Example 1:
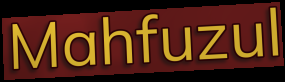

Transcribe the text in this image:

Mahfuzul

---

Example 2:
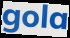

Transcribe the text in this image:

gola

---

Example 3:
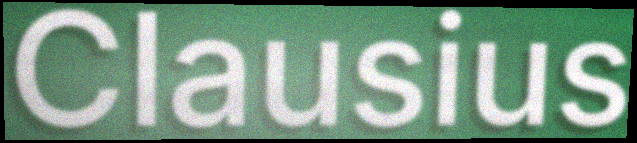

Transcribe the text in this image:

Clausius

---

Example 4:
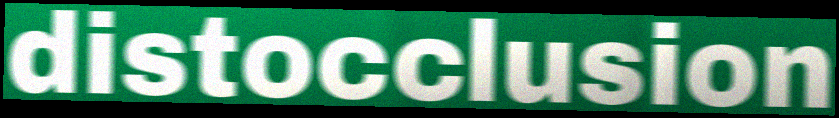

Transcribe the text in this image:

distocclusion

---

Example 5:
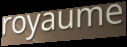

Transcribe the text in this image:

royaume